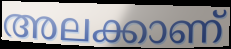
അലക്കാണ്